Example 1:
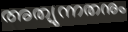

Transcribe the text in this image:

അത്യുന്നതനും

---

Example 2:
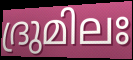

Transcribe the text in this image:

ദ്രുമിലഃ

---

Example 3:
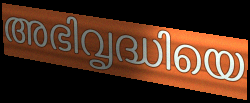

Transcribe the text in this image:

അഭിവൃദ്ധിയെ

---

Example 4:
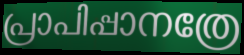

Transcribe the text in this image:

പ്രാപിപ്പാനത്രേ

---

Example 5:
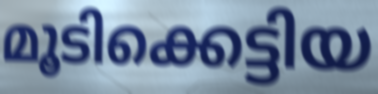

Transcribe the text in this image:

മൂടിക്കെട്ടിയ